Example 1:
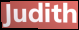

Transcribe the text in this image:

Judith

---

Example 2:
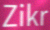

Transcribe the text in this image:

Zikr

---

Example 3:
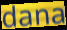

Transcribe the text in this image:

dana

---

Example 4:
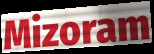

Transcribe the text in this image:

Mizoram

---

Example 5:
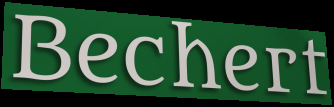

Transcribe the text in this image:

Bechert